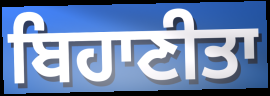
ਬਿਹਾਣੀਤਾ